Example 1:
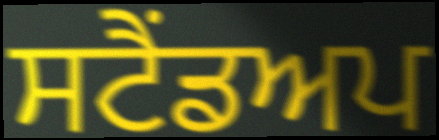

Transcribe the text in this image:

ਸਟੈਂਡਅਪ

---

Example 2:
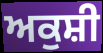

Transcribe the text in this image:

ਅਕੁਸ਼ੀ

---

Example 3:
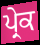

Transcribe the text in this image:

ਪ੍ਰੇਕ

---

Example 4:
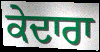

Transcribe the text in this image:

ਕੇਦਾਰਾ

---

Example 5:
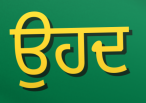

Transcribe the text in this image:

ਉਹਦ